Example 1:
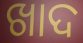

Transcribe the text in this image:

ଖାଦ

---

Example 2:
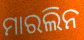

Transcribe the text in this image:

ମାରଲିନ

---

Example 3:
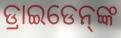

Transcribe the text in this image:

ଡ୍ରାଇଡେନ୍‌ଙ୍କ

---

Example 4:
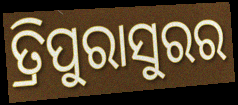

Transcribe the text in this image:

ତ୍ରିପୁରାସୁରର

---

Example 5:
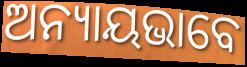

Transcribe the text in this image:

ଅନ୍ୟାୟଭାବେ